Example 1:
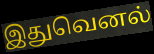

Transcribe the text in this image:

இதுவெனல்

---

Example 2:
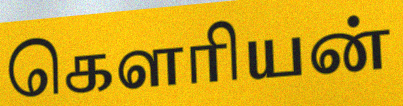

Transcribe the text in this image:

கௌரியன்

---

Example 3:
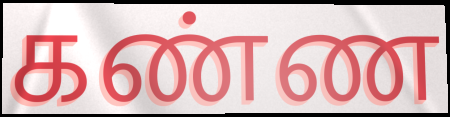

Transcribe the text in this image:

கண்ண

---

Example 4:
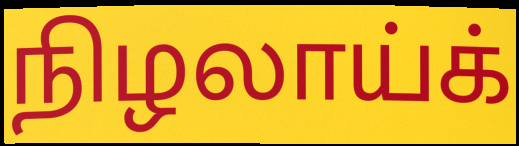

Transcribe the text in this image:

நிழலாய்க்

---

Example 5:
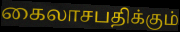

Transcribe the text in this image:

கைலாசபதிக்கும்